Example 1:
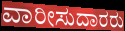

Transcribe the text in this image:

ವಾರೀಸುದಾರರು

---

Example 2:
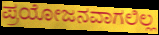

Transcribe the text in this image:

ಪ್ರಯೋಜನವಾಗಲಿಲ್ಲ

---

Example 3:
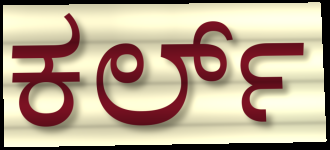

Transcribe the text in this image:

ಕರ್ಲ್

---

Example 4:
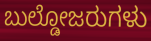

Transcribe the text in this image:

ಬುಲ್ಡೋಜರುಗಳು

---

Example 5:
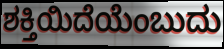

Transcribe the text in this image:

ಶಕ್ತಿಯಿದೆಯೆಂಬುದು